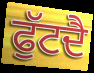
ਫੁੱਟਦੈ